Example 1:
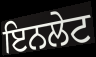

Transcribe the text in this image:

ਇਨਲੇਟ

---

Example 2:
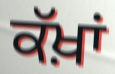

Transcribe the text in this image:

ਕੱਖ਼ਾਂ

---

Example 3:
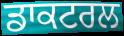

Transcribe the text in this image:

ਡਾਕਟਰਲ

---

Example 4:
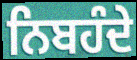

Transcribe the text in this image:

ਨਿਬਹੰਦੇ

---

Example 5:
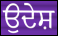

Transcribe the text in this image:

ਉਦੇਸ਼